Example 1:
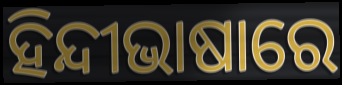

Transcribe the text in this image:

ହିନ୍ଦୀଭାଷାରେ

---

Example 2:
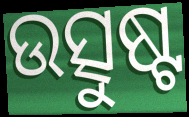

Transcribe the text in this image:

ଉତ୍ସୁଷ୍ଟ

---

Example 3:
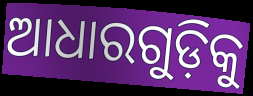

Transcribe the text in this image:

ଆଧାରଗୁଡ଼ିକୁ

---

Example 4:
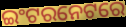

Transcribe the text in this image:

ଇଂଟରନେଟରେ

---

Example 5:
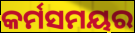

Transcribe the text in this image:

କର୍ମସମୟର